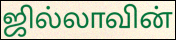
ஜில்லாவின்